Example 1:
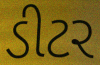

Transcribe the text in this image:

ડીટર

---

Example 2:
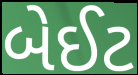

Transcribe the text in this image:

બેઈટ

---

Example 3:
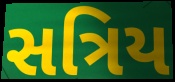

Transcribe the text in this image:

સત્રિય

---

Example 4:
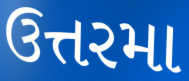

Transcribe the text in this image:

ઉત્તરમા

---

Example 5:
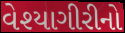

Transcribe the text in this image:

વેશ્યાગીરીનો